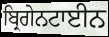
ਬ੍ਰਿਗੇਨਟਾਈਨ